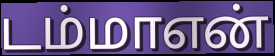
டம்மாஎன்